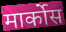
मार्कोस